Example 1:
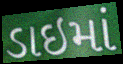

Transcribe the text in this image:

ડાઇમાં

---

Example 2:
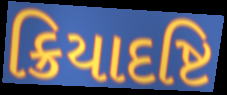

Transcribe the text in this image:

ક્રિયાદષ્ટિ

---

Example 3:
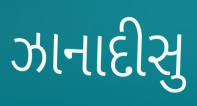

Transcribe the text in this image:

ઝાનાદીસુ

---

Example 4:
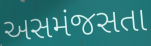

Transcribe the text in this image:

અસમંજસતા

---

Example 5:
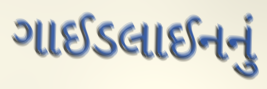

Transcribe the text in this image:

ગાઈડલાઈનનું